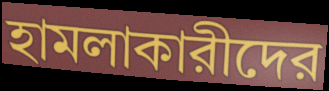
হামলাকারীদের